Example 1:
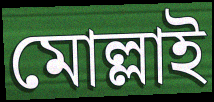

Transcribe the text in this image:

মোল্লাই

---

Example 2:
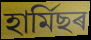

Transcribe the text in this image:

হাৰ্মিছৰ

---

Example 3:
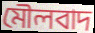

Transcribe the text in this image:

মৌলবাদ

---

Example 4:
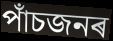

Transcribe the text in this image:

পাঁচজনৰ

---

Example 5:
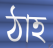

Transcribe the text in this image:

ঠাহ